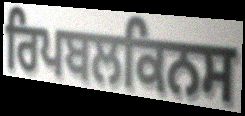
ਰਿਪਬਲਕਿਨਸ